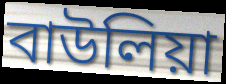
বাউলিয়া